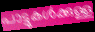
പാട്ടുകൾക്കുള്ള